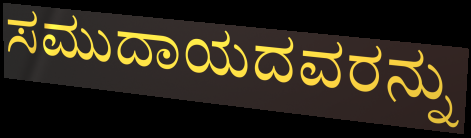
ಸಮುದಾಯದವರನ್ನು